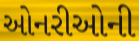
ઓનરીઓની